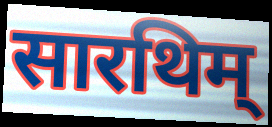
सारथिम्